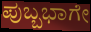
ಪುಬ್ಬಭಾಗೇ